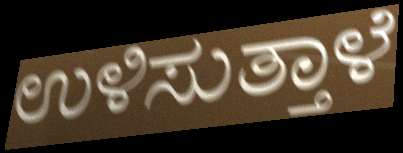
ಉಳಿಸುತ್ತಾಳೆ